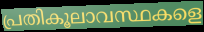
പ്രതികൂലാവസ്ഥകളെ